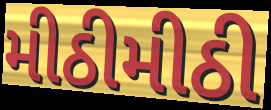
મીઠીમીઠી